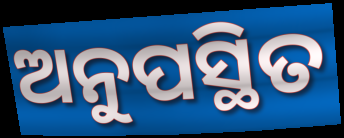
ଅନୁପସ୍ଥିତ